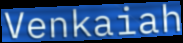
Venkaiah